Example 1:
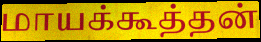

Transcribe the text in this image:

மாயக்கூத்தன்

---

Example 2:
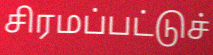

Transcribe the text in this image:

சிரமப்பட்டுச்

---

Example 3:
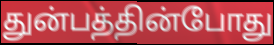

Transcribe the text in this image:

துன்பத்தின்போது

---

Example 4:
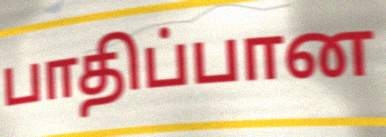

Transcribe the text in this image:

பாதிப்பான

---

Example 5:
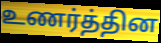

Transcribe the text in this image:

உணர்த்தின